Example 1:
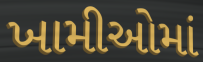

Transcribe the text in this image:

ખામીઓમાં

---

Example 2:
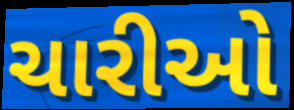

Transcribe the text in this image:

ચારીઓ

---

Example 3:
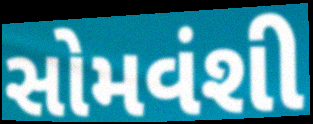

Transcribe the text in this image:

સોમવંશી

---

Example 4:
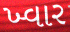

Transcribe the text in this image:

ખ્વાર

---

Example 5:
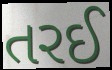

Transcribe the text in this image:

તરઈ